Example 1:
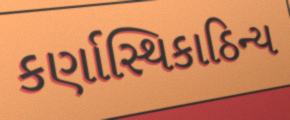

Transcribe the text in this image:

કર્ણાસ્થિકાઠિન્ય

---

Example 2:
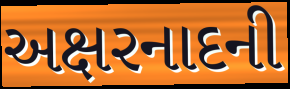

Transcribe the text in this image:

અક્ષરનાદની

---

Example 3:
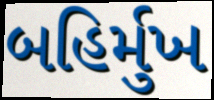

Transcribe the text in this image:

બહિર્મુખ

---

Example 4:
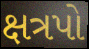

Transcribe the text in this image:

ક્ષત્રપો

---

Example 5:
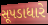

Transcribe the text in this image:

સૂપડાધારે